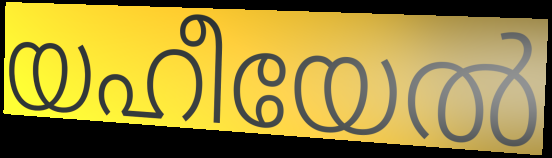
യഹീയേൽ